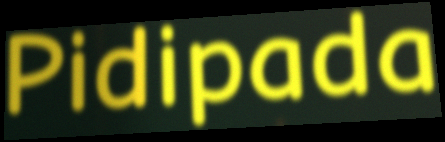
Pidipada